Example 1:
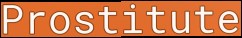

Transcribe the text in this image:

Prostitute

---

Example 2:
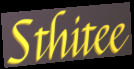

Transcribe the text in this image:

Sthitee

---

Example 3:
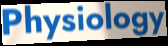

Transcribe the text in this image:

Physiology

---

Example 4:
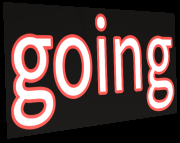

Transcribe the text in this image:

going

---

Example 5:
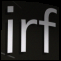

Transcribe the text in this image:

irf